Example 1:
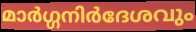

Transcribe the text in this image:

മാർഗ്ഗനിർദേശവും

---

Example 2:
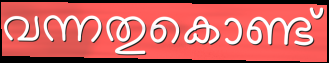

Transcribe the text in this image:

വന്നതുകൊണ്ട്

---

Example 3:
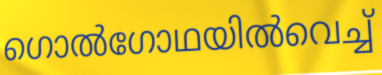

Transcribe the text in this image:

ഗൊൽഗോഥയിൽവെച്ച്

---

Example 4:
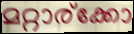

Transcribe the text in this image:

മറ്റാര്ക്കോ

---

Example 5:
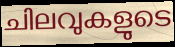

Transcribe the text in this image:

ചിലവുകളുടെ